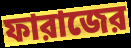
ফারাজের